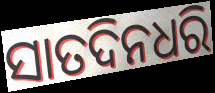
ସାତଦିନଧରି